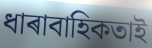
ধাৰাবাহিকতাই